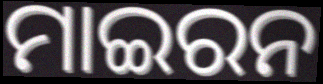
ମାଇରନ